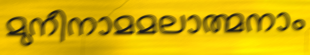
മുനീനാമമലാത്മനാം